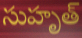
సుహృత్